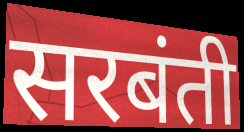
सरबंती